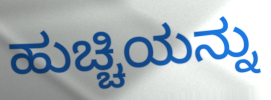
ಹುಚ್ಚಿಯನ್ನು